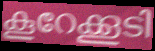
കൂറേക്കൂടി